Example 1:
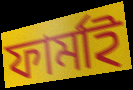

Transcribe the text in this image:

ফাৰ্মাই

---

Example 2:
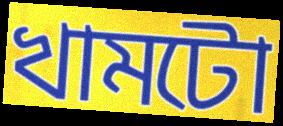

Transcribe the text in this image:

খামটো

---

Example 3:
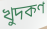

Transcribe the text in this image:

খুদকণ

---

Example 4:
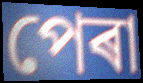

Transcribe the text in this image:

পেৰা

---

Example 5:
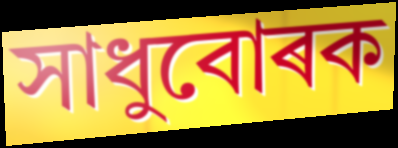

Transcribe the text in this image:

সাধুবোৰক